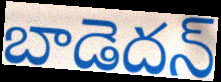
బాడెదన్